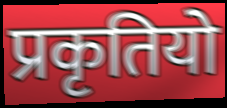
प्रकृतियो